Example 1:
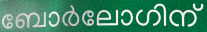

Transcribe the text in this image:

ബോർലോഗിന്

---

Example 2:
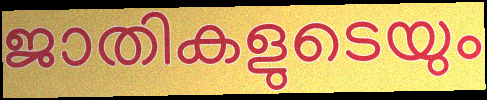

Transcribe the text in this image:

ജാതികളുടെയും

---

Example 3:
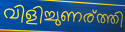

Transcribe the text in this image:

വിളിച്ചുണര്ത്തി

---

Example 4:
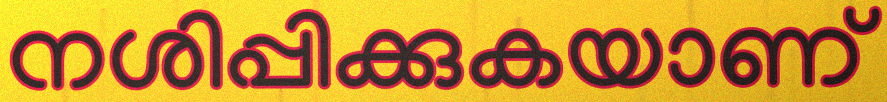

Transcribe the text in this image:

നശിപ്പിക്കുകയാണ്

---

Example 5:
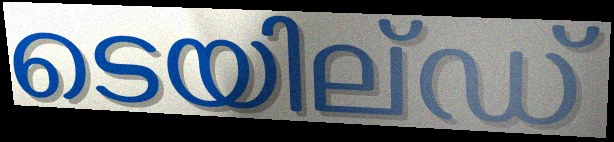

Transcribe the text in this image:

ടെയില്ഡ്